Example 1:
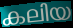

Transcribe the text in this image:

കലിയ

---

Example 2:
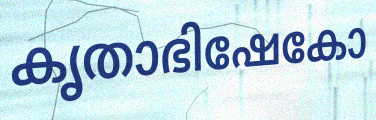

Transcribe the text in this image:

കൃതാഭിഷേകോ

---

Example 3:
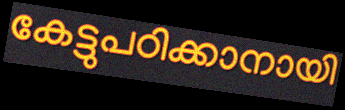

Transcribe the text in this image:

കേട്ടുപഠിക്കാനായി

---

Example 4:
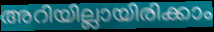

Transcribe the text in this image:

അറിയില്ലായിരിക്കാം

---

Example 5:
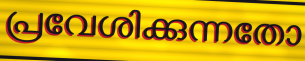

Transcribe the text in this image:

പ്രവേശിക്കുന്നതോ